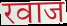
रवाज